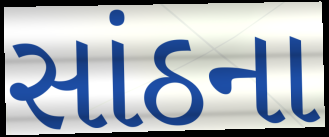
સાંઠના